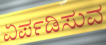
ಏರ್ಪಡಿಸುವ